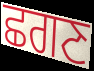
ਛਗਣ